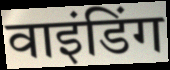
वाइंडिंग